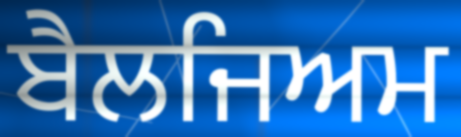
ਬੈਲਜਿਅਮ